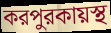
করপুরকায়স্থ